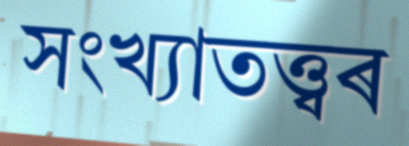
সংখ্যাতত্ত্বৰ